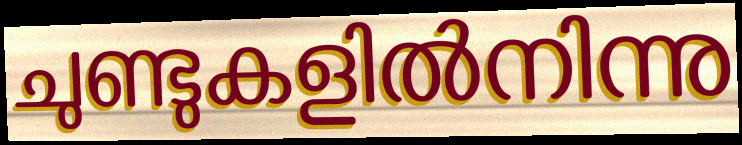
ചുണ്ടുകളിൽനിന്നു